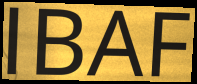
IBAF